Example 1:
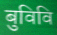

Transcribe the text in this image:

बुविवि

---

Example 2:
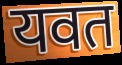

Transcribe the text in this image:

यवत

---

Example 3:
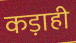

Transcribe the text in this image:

कड़ाही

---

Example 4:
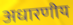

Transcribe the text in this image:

अधारणीय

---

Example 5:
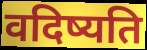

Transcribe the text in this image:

वदिष्यति